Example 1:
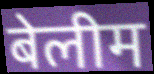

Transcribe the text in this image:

बेलीम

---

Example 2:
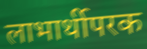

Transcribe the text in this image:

लाभार्थीपरक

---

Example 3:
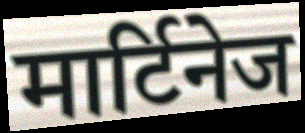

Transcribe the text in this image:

मार्टिनेज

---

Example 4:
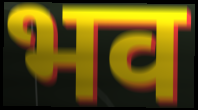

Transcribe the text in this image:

भव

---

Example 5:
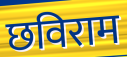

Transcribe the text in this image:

छविराम